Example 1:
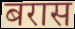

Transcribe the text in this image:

बरास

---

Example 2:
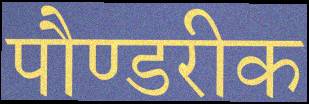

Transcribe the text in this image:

पौण्डरीक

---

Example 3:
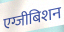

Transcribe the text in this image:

एग्जीबिशन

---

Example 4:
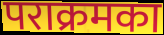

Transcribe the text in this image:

पराक्रमका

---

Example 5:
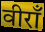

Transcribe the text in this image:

वीराँ